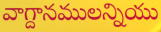
వాగ్దానములన్నియు